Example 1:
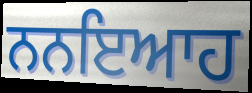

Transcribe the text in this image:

ਨਨਇਆਹ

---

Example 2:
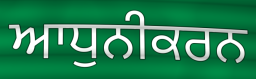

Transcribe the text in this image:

ਆਧੁਨੀਕਰਨ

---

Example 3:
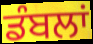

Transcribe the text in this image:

ਡੰਬਲਾਂ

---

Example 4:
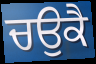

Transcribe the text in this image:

ਚਉਕੈ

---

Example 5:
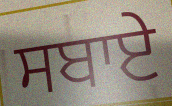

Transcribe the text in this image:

ਸਬਾਏ